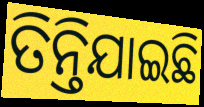
ତିନ୍ତିଯାଇଛି